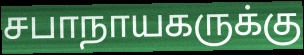
சபாநாயகருக்கு